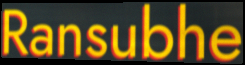
Ransubhe